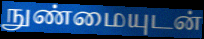
நுண்மையுடன்